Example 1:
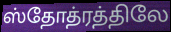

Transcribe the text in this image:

ஸ்தோத்ரத்திலே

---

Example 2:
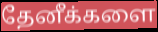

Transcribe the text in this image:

தேனீக்களை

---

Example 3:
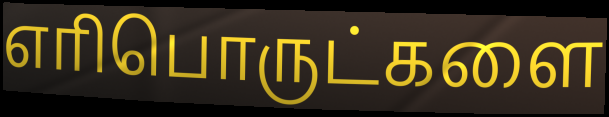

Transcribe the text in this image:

எரிபொருட்களை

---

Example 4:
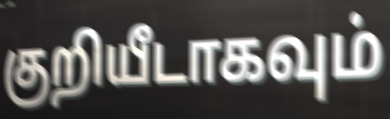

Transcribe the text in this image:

குறியீடாகவும்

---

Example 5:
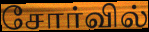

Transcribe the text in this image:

சோர்வில்